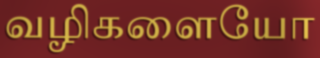
வழிகளையோ